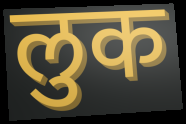
लुक